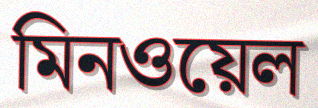
মিনওয়েল